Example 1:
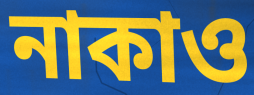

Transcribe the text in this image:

নাকাও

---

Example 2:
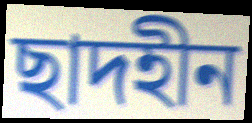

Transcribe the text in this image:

ছাদহীন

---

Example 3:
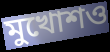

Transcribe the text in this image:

মুখোশও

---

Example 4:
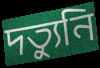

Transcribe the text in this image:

দত্যুনি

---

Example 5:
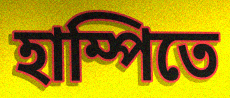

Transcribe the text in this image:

হাম্পিতে